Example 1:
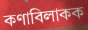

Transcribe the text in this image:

কণাবিলাকক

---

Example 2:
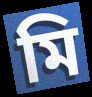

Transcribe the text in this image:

মি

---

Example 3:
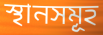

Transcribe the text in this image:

স্থানসমূহ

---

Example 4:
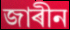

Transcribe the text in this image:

জাৰীন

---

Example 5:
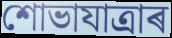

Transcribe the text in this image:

শোভাযাত্ৰাৰ